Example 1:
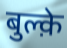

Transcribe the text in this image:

बुल्क़े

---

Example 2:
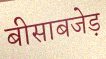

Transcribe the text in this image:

बीसाबजेड़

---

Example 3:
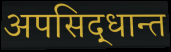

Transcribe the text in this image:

अपसिद्धान्त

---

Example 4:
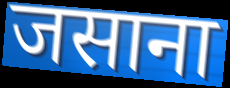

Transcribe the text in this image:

जसाना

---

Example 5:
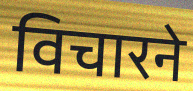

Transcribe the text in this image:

विचारने